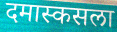
दमास्कसला